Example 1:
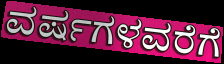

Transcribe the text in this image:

ವರ್ಷಗಳವರೆಗೆ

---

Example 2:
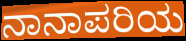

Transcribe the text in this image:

ನಾನಾಪರಿಯ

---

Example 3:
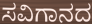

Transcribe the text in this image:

ಸವಿಗಾನದ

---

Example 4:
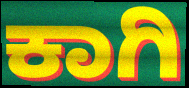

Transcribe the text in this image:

ಕಾಗಿ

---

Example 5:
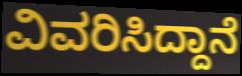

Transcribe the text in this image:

ವಿವರಿಸಿದ್ದಾನೆ